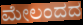
ಮೇಲಂದದ